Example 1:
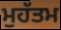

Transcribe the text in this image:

ਮੁਹੱਤਮ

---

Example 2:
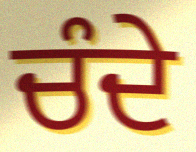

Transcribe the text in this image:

ਚੰਦੇ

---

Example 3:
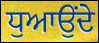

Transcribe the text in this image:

ਧੁਆਉਂਦੇ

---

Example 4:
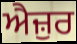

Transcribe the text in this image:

ਐਜ਼ੁਰ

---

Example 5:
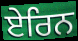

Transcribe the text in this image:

ਏਰਿਨ